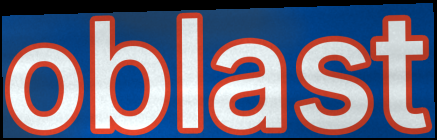
oblast